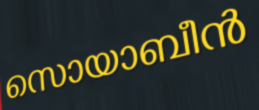
സൊയാബീൻ